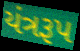
યંત્રરૂપ